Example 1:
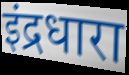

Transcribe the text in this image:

इंद्रधारा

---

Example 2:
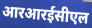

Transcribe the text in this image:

आरआरईसीएल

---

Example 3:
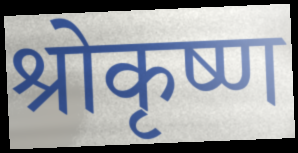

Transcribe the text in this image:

श्रोकृष्ण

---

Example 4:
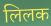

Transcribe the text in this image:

लिलक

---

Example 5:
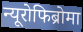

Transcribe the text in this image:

न्यूरोफिब्रोमा